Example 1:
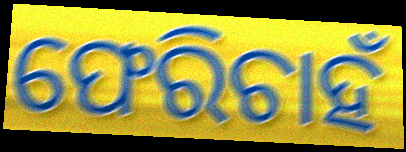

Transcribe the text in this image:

ଫେରିଚାହଁ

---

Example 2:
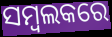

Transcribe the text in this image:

ସମ୍ବଲକରେ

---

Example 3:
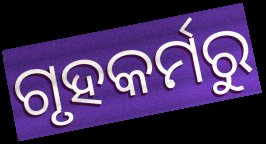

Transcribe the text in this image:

ଗୃହକର୍ମରୁ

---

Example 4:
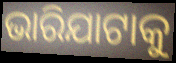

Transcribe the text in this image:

ଭାରିଯାଟାକୁ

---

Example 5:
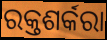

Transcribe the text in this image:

ରକ୍ତଶର୍କରା